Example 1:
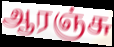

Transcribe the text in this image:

ஆரஞ்சு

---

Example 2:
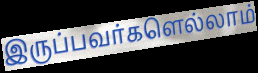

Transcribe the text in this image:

இருப்பவர்களெல்லாம்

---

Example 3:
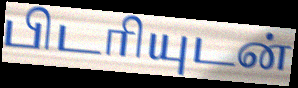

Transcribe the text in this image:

பிடரியுடன்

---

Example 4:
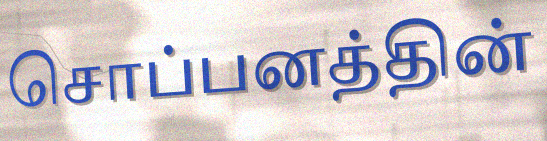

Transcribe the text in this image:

சொப்பனத்தின்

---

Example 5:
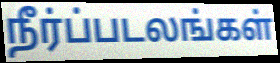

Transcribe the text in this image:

நீர்ப்படலங்கள்